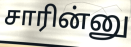
சாரின்னு